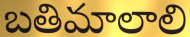
బతిమాలాలి